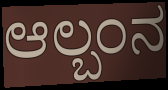
ಆಲ್ಬಂನ